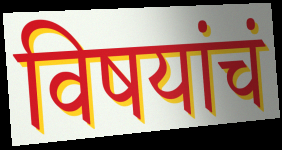
विषयांचं